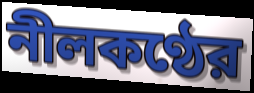
নীলকণ্ঠের